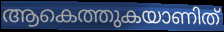
ആകെത്തുകയാണിത്